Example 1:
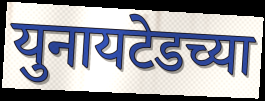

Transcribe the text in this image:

युनायटेडच्या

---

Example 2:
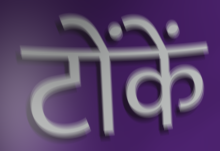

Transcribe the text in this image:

टोंकें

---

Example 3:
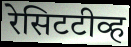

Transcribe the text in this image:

रेसिटटीव्ह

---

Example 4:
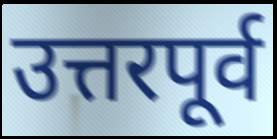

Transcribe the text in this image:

उत्तरपूर्व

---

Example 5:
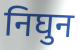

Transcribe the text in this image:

निघुन